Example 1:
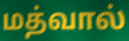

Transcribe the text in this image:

மத்வால்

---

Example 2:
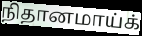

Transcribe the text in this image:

நிதானமாய்க்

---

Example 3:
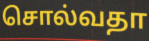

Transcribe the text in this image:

சொல்வதா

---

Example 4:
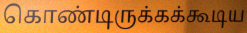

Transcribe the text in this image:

கொண்டிருக்கக்கூடிய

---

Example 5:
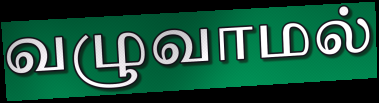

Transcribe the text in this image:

வழுவாமல்